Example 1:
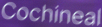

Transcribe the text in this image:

Cochineal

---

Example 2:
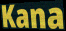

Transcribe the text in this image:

Kana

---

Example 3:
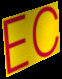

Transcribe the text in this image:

EC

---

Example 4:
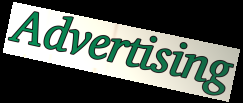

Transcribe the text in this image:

Advertising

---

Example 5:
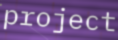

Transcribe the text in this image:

project